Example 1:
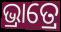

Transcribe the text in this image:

ଭ୍ରାତ୍ରେ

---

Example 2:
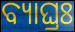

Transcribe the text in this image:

ବ୍ୟାଘ୍ରଃ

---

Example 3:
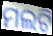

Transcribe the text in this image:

ମଲଟି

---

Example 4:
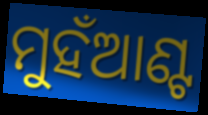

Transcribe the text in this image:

ମୁହଁଆଣ୍ଟ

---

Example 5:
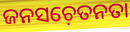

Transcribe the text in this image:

ଜନସଚ଼େତନତା